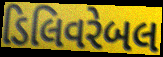
ડિલિવરેબલ